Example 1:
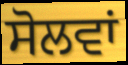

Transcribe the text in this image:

ਸੋਲਵਾਂ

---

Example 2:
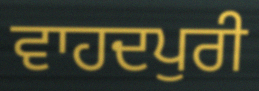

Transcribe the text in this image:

ਵਾਹਦਪੁਰੀ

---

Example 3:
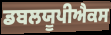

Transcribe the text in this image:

ਡਬਲਯੂਪੀਐਕਸ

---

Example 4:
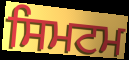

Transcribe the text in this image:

ਸਿਮਟਮ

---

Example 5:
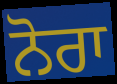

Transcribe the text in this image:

ਨੋਰਾ